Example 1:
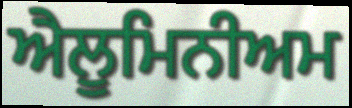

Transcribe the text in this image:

ਐਲੂਮਿਨੀਅਮ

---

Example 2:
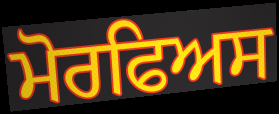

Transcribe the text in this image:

ਮੋਰਫਿਅਸ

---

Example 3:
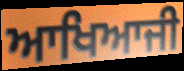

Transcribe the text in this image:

ਆਖਿਆਜੀ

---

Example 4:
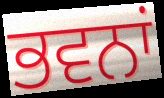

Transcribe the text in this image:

ਭਵਨਾਂ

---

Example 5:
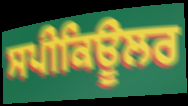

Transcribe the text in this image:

ਸਪੀਕਿਊਲਰ